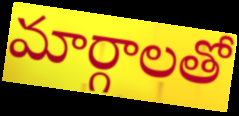
మార్గాలతో